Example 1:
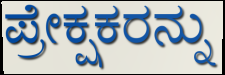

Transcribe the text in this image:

ಪ್ರೇಕ್ಷಕರನ್ನು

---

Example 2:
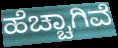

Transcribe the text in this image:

ಹೆಚ್ಚಾಗಿವೆ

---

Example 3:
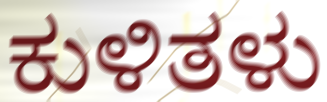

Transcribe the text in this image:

ಕುಳಿತಳು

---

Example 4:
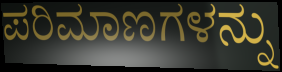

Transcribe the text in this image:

ಪರಿಮಾಣಗಳನ್ನು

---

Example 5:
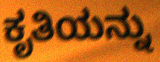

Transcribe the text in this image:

ಕೃತಿಯನ್ನು